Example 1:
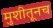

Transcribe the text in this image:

मुशीतूनच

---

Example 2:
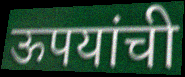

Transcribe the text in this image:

ऊपयांची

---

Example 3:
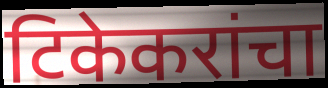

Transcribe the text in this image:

टिकेकरांचा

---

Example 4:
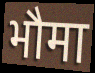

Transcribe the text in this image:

भौमा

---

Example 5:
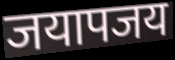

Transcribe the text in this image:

जयापजय